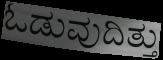
ಓಡುವುದಿತ್ತು